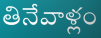
తినేవాళ్లం